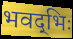
भवद्‌भिः